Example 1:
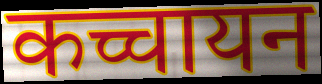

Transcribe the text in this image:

कच्चायन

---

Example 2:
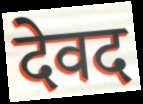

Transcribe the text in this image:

देवद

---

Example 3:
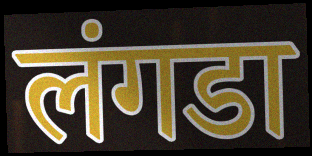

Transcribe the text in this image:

लंगडा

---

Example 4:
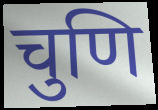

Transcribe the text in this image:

चुणि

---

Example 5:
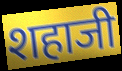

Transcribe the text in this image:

शहाजी